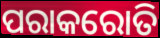
ପରାକରୋତି